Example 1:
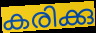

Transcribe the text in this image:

കരിക്കു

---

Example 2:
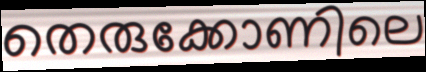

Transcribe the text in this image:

തെരുക്കോണിലെ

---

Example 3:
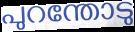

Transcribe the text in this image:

പുറന്തോടു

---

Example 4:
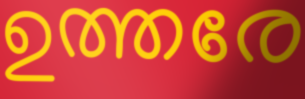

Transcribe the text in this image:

ഉത്തരേ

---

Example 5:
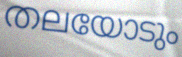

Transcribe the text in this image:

തലയോടും